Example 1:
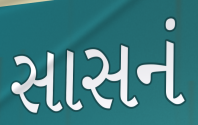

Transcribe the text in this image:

સાસનં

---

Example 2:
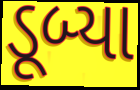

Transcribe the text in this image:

ડૂબ્યા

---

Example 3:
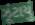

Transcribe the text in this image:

ઝૂંટાયું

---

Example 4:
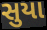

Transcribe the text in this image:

સુયા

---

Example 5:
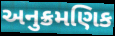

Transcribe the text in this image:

અનુક્રમણિક